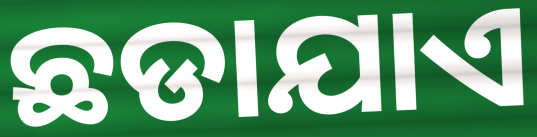
ଛଡାଯାଏ